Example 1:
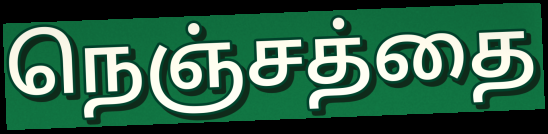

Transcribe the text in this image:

நெஞ்சத்தை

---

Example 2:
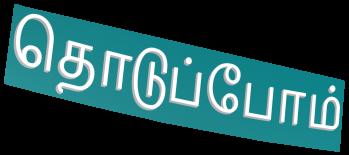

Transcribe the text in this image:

தொடுப்போம்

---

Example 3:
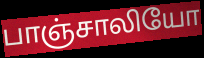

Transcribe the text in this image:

பாஞ்சாலியோ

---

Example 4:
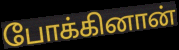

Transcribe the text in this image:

போக்கினான்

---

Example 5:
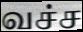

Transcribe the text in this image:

வச்ச